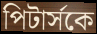
পিটার্সকে